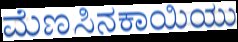
ಮೆಣಸಿನಕಾಯಿಯು